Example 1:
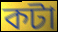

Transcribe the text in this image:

কটা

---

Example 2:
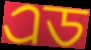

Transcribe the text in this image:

এড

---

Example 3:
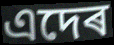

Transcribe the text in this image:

এদেৰ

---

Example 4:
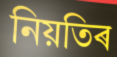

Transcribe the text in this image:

নিয়তিৰ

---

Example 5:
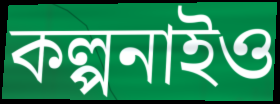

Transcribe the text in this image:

কল্পনাইও